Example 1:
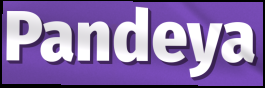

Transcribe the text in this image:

Pandeya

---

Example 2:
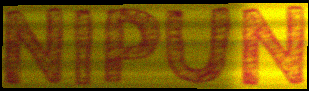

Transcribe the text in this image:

NIPUN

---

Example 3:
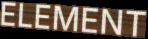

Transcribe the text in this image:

ELEMENT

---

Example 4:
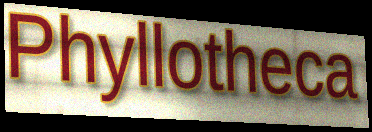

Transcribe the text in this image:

Phyllotheca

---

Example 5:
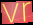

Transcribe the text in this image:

vr